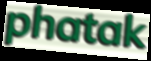
phatak